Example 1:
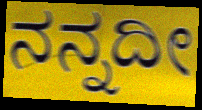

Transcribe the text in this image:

ನನ್ನದೀ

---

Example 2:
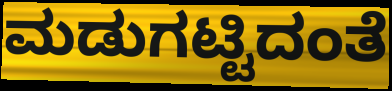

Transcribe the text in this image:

ಮಡುಗಟ್ಟಿದಂತೆ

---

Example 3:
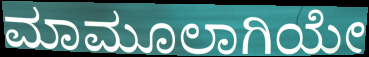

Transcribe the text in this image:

ಮಾಮೂಲಾಗಿಯೇ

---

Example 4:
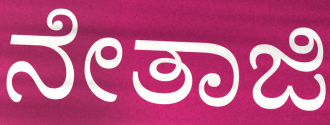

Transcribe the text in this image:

ನೇತಾಜಿ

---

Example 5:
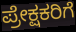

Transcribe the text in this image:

ಪ್ರೇಕ್ಷಕರಿಗೆ